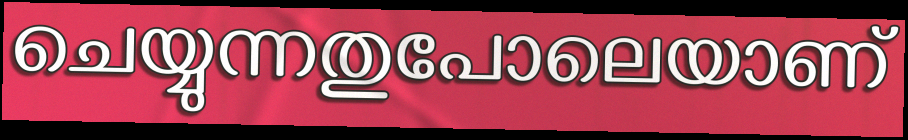
ചെയ്യുന്നതുപോലെയാണ്